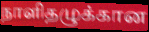
நாளிதழுக்கான